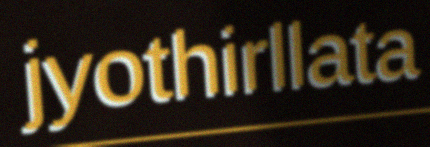
jyothirllata